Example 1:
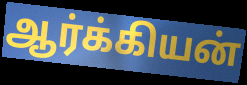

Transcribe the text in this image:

ஆர்க்கியன்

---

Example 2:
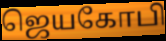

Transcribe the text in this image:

ஜெயகோபி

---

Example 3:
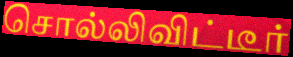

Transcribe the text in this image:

சொல்லிவிட்டீர்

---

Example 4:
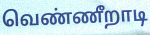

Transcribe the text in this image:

வெண்ணீறாடி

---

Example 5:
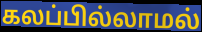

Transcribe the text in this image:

கலப்பில்லாமல்